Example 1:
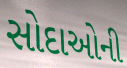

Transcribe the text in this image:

સોદાઓની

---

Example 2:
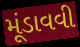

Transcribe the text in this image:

મૂંડાવવી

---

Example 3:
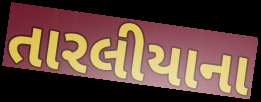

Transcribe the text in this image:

તારલીયાના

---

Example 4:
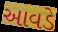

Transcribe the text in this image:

આવડે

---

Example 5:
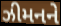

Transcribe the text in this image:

ઝીમનને